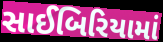
સાઈબિરિયામાં